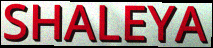
SHALEYA